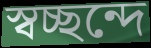
স্বচ্ছন্দে